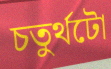
চতুৰ্থটো